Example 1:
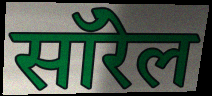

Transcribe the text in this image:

सॉरेल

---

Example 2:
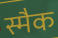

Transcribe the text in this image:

स्मैक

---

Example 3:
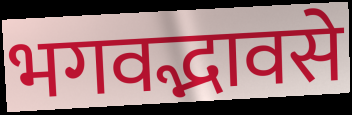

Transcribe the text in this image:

भगवद्भावसे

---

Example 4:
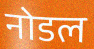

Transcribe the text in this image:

नोडल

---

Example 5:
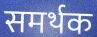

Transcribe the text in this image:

समर्थक